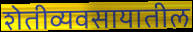
शेतीव्यवसायातील